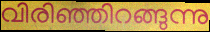
വിരിഞ്ഞിറങ്ങുന്നു